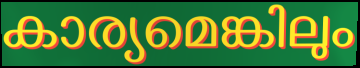
കാര്യമെങ്കിലും